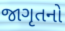
જાગૃતનો